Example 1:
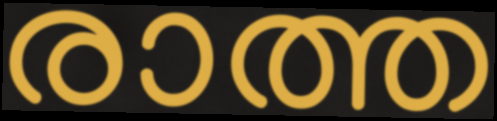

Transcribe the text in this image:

രാത്ത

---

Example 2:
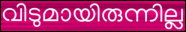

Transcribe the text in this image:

വിടുമായിരുന്നില്ല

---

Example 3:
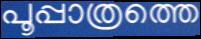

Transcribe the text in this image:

പൂപ്പാത്രത്തെ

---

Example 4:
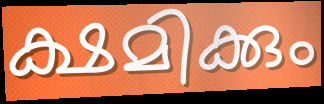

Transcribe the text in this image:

ക്ഷമിക്കും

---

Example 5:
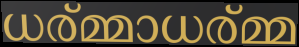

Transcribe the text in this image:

ധര്മ്മാധര്മ്മ